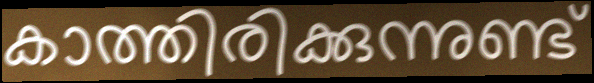
കാത്തിരിക്കുന്നുണ്ട്